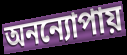
অনন্যোপায়